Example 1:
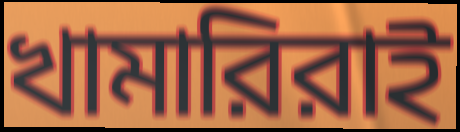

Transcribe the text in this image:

খামারিরাই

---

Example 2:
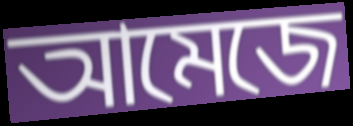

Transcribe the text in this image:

আমেজে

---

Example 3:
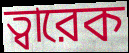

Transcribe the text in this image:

ত্বারেক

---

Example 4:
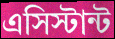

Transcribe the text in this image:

এসিস্টান্ট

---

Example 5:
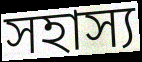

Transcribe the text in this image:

সহাস্য